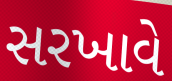
સરખાવે